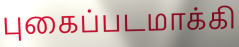
புகைப்படமாக்கி